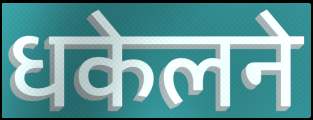
धकेलने